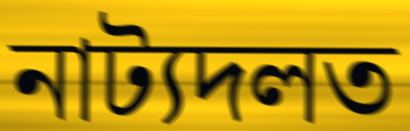
নাট্যদলত